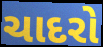
ચાદરો